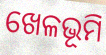
ଖେଳଭୂମି